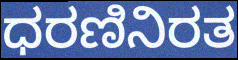
ಧರಣಿನಿರತ